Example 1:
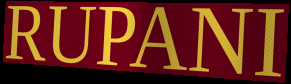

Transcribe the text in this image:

RUPANI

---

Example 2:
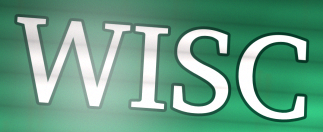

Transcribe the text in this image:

WISC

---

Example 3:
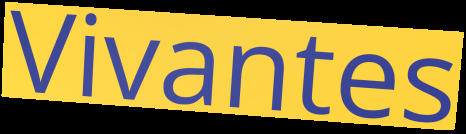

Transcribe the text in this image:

Vivantes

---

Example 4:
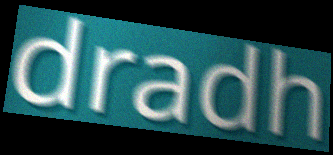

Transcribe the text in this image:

dradh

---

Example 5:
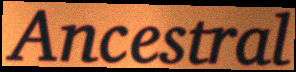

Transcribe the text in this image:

Ancestral